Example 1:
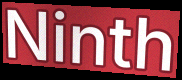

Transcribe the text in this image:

Ninth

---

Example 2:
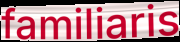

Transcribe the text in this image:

familiaris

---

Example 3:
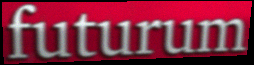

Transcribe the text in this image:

futurum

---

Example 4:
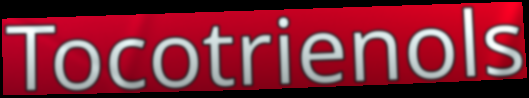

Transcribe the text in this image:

Tocotrienols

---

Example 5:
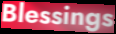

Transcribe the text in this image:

Blessings